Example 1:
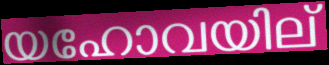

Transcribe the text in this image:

യഹോവയില്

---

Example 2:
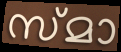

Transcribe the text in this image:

സ്മാ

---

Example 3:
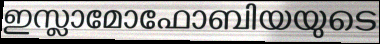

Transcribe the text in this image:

ഇസ്ലാമോഫോബിയയുടെ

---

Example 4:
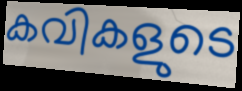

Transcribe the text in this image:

കവികളുടെ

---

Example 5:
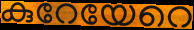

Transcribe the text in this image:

കുറേയേറെ